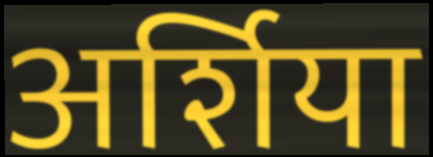
अर्शिया